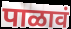
पाळावं